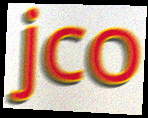
jco